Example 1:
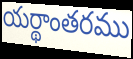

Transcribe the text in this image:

యర్థాంతరము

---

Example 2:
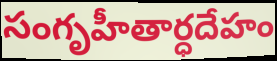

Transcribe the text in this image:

సంగృహీతార్ధదేహం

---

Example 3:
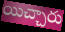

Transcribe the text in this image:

యిచ్చారు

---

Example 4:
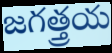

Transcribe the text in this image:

జగత్త్రయ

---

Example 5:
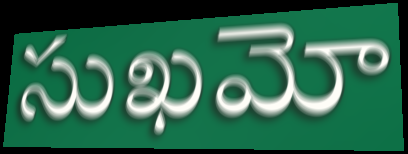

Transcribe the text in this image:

సుఖమో